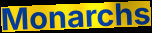
Monarchs